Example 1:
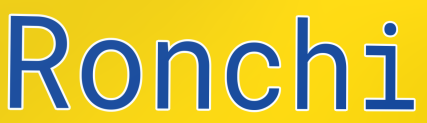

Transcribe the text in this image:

Ronchi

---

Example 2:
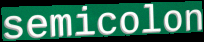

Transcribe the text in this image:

semicolon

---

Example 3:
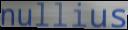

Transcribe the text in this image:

nullius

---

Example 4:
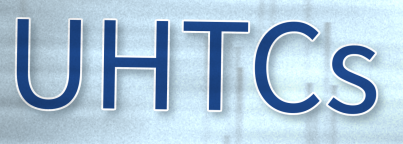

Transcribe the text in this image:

UHTCs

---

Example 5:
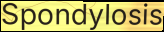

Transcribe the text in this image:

Spondylosis